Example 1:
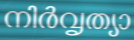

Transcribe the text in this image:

നിർവൃത്യാ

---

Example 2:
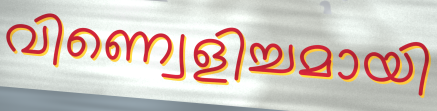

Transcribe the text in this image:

വിണ്വെളിച്ചമായി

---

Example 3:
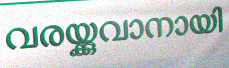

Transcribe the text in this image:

വരയ്ക്കുവാനായി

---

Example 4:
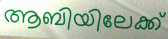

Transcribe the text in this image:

ആബിയിലേക്ക്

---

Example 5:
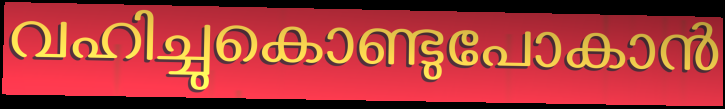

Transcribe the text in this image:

വഹിച്ചുകൊണ്ടുപോകാൻ